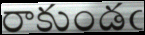
రాకుండఁ